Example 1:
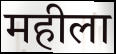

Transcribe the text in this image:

महीला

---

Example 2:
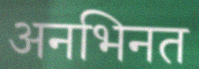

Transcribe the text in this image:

अनभिनत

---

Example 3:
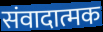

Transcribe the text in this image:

संवादात्मक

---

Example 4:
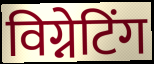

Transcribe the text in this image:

विग्नेटिंग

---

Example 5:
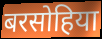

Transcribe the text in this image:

बरसोहिया